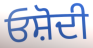
ਓਸ਼ੋਦੀ